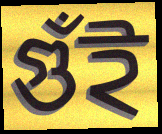
গুঁই